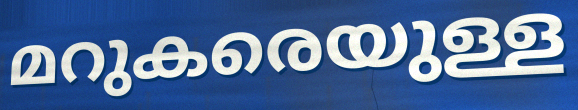
മറുകരെയുള്ള